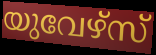
യുവേഴ്സ്